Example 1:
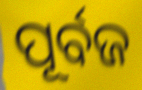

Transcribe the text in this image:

ପୂର୍ବଜ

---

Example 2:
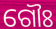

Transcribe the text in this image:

ଗୌଃ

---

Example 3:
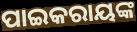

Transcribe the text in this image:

ପାଇକରାୟଙ୍କ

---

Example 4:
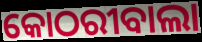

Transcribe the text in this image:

କୋଠରୀବାଲା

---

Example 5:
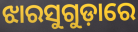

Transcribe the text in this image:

ଝାରସୁଗୁଡ଼ାରେ